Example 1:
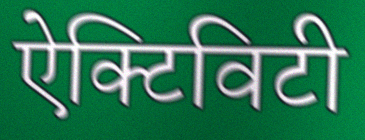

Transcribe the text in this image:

ऐक्टिविटी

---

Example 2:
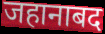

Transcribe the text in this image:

जहानाबद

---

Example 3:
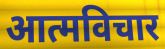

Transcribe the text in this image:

आत्मविचार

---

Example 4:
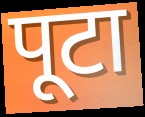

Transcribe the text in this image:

पूटा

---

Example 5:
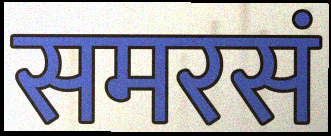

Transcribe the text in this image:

समरसं